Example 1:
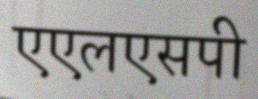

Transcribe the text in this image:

एएलएसपी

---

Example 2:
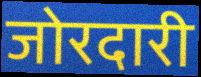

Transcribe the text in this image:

जोरदारी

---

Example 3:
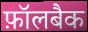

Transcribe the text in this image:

फ़ॉलबैक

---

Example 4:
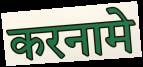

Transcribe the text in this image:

करनामे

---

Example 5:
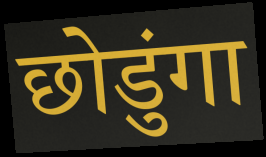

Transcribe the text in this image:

छोडुंगा